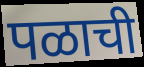
पळाची